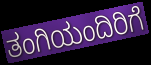
ತಂಗಿಯಂದಿರಿಗೆ